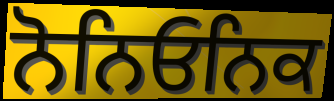
ਨੋਨਿਓਨਿਕ